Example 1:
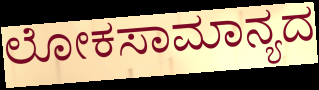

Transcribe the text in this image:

ಲೋಕಸಾಮಾನ್ಯದ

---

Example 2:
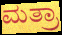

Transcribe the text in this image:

ಮತ್ರಾ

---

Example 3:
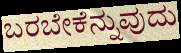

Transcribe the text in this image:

ಬರಬೇಕೆನ್ನುವುದು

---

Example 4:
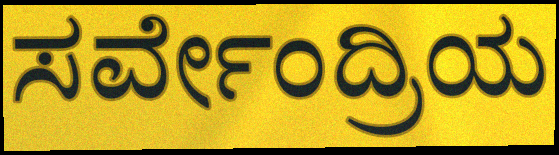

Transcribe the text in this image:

ಸರ್ವೇಂದ್ರಿಯ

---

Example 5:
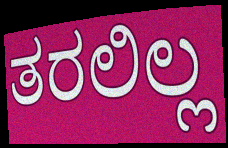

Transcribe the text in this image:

ತರಲಿಲ್ಲ